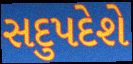
સદુપદેશે